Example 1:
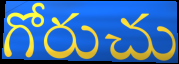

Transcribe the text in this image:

గోరుచు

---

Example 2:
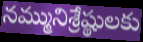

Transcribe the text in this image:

నమ్మునిశ్రేష్ఠులకు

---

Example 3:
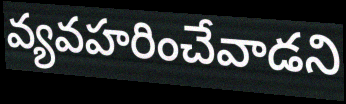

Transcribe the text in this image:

వ్యవహరించేవాడని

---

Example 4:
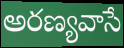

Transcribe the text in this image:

అరణ్యవాసే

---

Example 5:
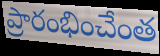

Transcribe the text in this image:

ప్రారంభించేంత